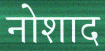
नोशाद